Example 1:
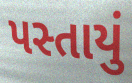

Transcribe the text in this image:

પસ્તાયું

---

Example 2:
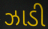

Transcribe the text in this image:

ઝાડી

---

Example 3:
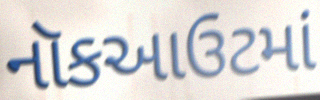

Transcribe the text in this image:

નૉકઆઉટમાં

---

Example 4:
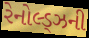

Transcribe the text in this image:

રેનોલ્ડ્ઝની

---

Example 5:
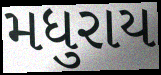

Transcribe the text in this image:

મધુરાય